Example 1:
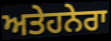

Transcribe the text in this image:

ਅਤੇਹਨੇਰਾ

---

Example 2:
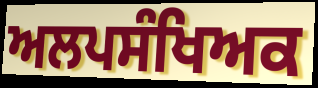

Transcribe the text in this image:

ਅਲਪਸੰਖਿਅਕ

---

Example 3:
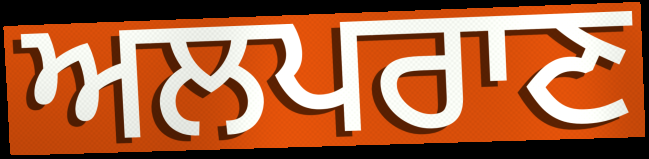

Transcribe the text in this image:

ਅਲਪਰਾਣ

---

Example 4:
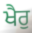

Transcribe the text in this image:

ਖੈਰੁ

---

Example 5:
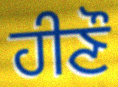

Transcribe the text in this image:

ਹੀਣੌ